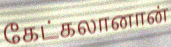
கேட்கலானான்